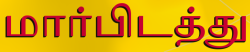
மார்பிடத்து